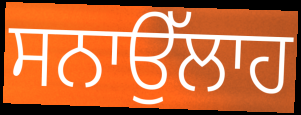
ਸਨਾਉੱਲਾਹ